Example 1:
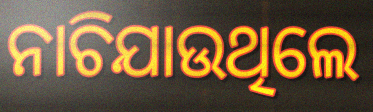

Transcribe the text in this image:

ନାଚିଯାଉଥିଲେ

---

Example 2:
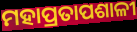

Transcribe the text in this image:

ମହାପ୍ରତାପଶାଳୀ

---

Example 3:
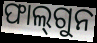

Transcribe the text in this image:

ଫାଲ୍‍ଗୁନ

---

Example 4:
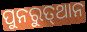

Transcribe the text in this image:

ପୁନରୁତ୍‌ଥାନ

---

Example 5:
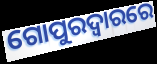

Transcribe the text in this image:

ଗୋପୁରଦ୍ବାରରେ